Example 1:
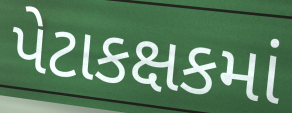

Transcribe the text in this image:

પેટાકક્ષકમાં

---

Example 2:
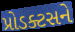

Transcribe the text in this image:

પ્રોડક્ટસને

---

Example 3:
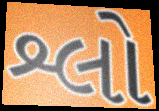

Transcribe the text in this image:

શ્લો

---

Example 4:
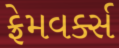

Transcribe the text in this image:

ફ્રેમવર્ક્સ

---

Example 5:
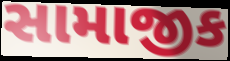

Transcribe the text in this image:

સામાજીક